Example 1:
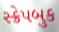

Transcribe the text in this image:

સ્ક્રેપબુક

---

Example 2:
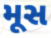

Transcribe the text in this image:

મૂસ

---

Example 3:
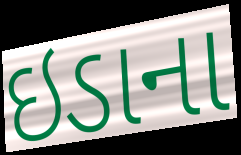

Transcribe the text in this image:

ઇડાના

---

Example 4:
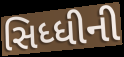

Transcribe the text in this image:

સિધ્ધીની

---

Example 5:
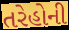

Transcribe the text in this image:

તરેહોની